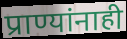
प्राण्यांनाही